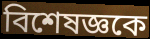
বিশেষজ্ঞকে